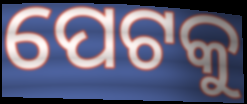
ପେଟକୁ